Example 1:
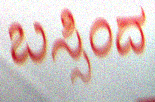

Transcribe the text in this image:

ಬಸ್ಸಿಂದ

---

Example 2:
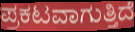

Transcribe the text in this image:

ಪ್ರಕಟವಾಗುತ್ತಿದೆ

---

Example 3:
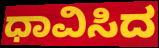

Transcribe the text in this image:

ಧಾವಿಸಿದ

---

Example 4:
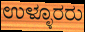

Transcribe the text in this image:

ಉಳ್ಳೂರರು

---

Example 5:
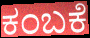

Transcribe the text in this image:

ಕಂಬಕೆ